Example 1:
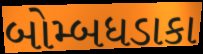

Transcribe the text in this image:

બોમ્બધડાકા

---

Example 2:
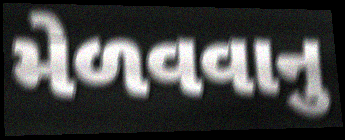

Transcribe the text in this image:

મેળવવાનુ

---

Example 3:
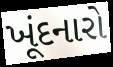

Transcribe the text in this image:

ખૂંદનારો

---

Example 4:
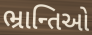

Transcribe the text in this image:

ભ્રાન્તિઓ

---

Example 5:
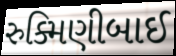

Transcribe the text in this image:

રુક્મિણીબાઈ